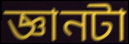
জ্ঞানটা